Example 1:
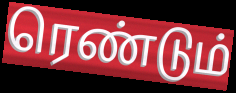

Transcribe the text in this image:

ரெண்டும்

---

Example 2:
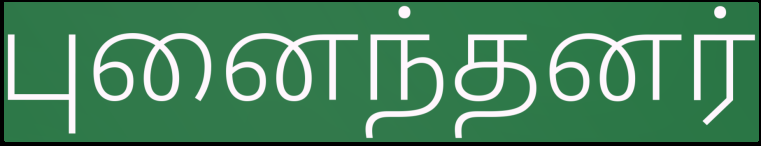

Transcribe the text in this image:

புனைந்தனர்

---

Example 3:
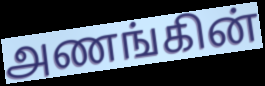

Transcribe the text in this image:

அணங்கின்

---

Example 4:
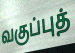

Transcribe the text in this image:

வகுப்புத்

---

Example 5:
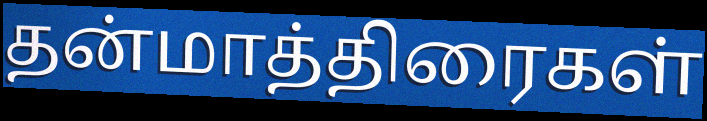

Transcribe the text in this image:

தன்மாத்திரைகள்